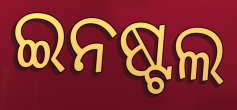
ଇନଷ୍ଟଲ